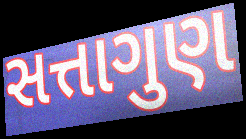
સત્તાગુણ